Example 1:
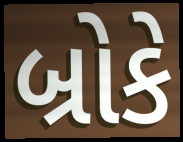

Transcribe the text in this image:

બ્રોકે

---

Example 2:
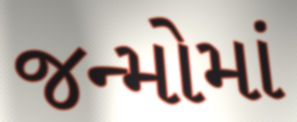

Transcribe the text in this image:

જન્મોમાં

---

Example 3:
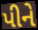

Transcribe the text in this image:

પીને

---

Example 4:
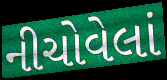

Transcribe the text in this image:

નીચોવેલાં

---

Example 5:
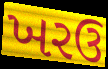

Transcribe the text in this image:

ખરઉ